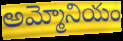
అమ్మోనియం